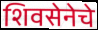
शिवसेनेचे